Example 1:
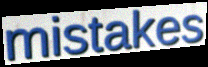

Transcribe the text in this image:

mistakes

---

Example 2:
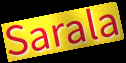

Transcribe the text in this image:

Sarala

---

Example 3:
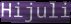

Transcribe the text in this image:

Hijuli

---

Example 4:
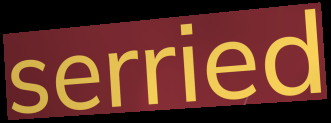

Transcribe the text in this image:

serried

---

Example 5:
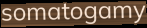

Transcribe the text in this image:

somatogamy